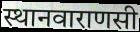
स्थानवाराणसी